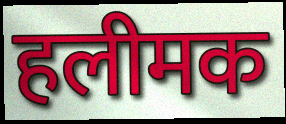
हलीमक